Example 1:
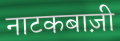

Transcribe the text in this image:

नाटकबाज़ी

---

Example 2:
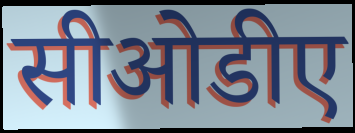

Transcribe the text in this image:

सीओडीए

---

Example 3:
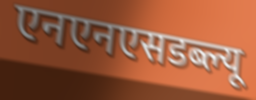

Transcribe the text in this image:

एनएनएसडब्ल्यू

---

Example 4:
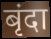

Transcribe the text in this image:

बृंदा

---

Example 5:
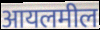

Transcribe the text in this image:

आयलमील